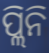
ପ୍ଲିନି